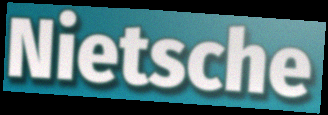
Nietsche